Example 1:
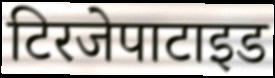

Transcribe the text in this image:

टिरजेपाटाइड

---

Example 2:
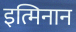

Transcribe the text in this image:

इत्मिनान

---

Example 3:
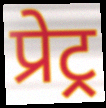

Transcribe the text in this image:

प्रेट्र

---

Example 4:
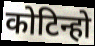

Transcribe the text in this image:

कोटिन्हो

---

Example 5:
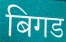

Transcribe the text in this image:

बिगड